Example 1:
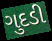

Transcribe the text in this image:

ગુદડી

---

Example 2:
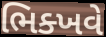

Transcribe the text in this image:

ભિક્ખવે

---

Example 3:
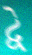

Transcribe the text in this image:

દ્વે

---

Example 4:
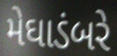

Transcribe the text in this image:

મેઘાડંબરે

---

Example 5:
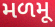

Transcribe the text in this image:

મળમૂ